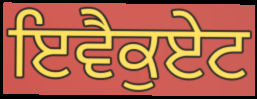
ਇਵੈਕੁਏਟ